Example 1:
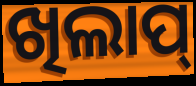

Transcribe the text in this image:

ଖିଲାପ୍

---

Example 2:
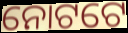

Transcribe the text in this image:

ନୋଟଟେ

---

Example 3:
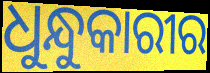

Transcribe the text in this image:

ଧୁନ୍ଧୁକାରୀର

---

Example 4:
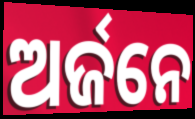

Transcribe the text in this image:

ଅର୍ଜନେ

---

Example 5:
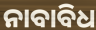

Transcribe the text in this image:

ନାବାବିଧ